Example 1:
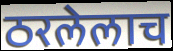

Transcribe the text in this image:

ठरलेलाच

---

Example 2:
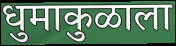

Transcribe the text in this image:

धुमाकुळाला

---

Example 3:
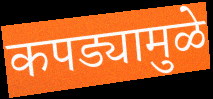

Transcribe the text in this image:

कपड्यामुळे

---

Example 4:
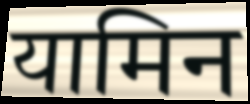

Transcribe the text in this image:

यामिन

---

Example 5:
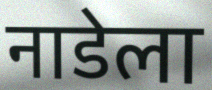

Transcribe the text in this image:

नाडेला